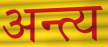
अन्त्य